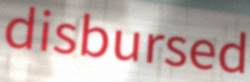
disbursed